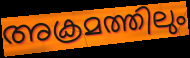
അക്രമത്തിലും